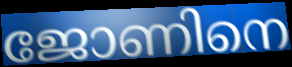
ജോണിനെ